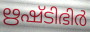
ഋഷ്ടിഭിർ